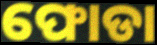
ଫୋଡା